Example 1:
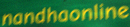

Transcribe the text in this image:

nandhaonline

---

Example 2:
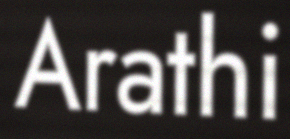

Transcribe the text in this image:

Arathi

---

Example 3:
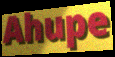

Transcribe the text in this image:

Ahupe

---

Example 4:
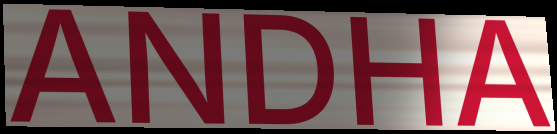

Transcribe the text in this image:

ANDHA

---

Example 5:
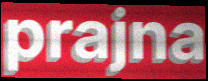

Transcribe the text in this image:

prajna